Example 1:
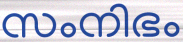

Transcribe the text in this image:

സംനിഭം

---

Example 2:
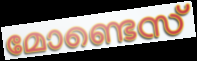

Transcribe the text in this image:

മോണ്ടെസ്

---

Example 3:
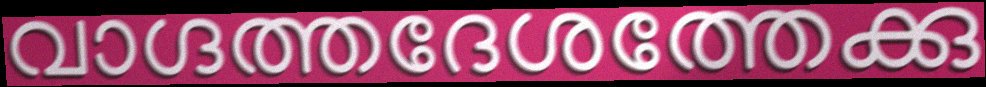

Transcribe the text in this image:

വാഗ്ദത്തദേശത്തേക്കു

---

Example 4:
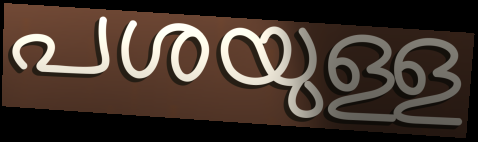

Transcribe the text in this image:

പശയുള്ള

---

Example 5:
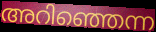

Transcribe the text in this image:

അറിഞ്ഞെന്ന